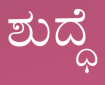
ಶುದ್ಧೆ